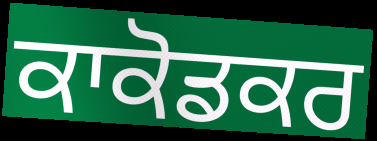
ਕਾਕੋਡਕਰ